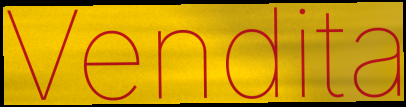
Vendita